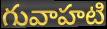
గువాహటి